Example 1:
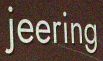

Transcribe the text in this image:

jeering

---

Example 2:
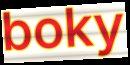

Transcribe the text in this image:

boky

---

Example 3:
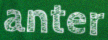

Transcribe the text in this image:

anter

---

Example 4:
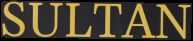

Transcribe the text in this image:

SULTAN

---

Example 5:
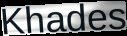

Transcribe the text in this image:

Khades